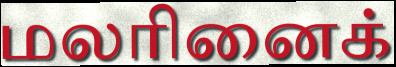
மலரினைக்